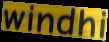
windhi